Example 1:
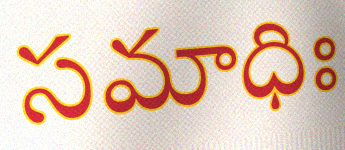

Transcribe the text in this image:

సమాధిః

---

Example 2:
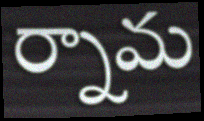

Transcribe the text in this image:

ర్నామ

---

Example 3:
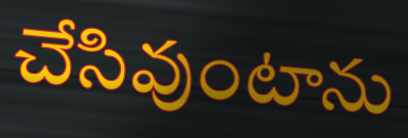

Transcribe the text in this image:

చేసివుంటాను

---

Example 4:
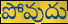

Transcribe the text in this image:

పోవుదు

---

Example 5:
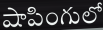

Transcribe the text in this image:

షాపింగులో